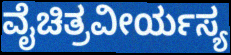
ವೈಚಿತ್ರವೀರ್ಯಸ್ಯ